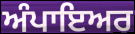
ਅੰਪਾਇਅਰ